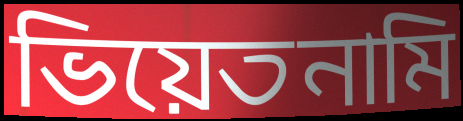
ভিয়েতনামি